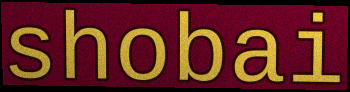
shobai